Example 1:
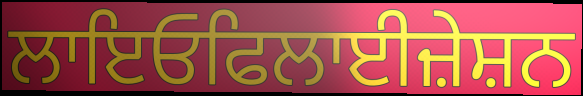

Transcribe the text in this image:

ਲਾਇਓਫਿਲਾਈਜ਼ੇਸ਼ਨ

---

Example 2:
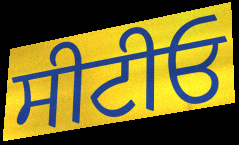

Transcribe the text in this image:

ਸੀਟੀਓ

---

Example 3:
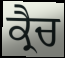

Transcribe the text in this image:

ਕ੍ਰੈਚ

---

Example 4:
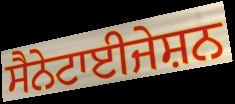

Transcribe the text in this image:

ਸੈਨੇਟਾਈਜੇਸ਼ਨ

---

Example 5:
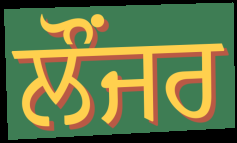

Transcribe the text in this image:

ਲੌਂਜਰ